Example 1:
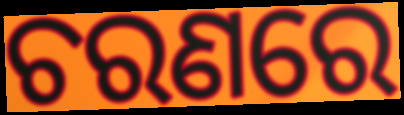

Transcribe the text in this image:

ଚରଣରେ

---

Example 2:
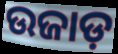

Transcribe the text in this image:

ଉଜାଡ଼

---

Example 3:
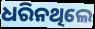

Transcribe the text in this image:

ଧରିନଥିଲେ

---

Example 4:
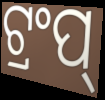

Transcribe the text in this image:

ଟ୍ରଂପ୍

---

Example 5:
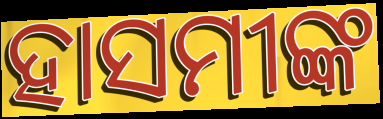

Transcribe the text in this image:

ହାସମୀଙ୍କ